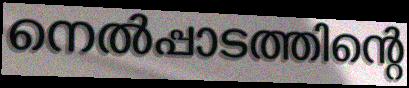
നെൽപ്പാടത്തിന്റെ